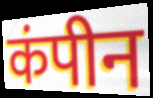
कंपीन